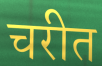
चरीत